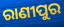
ରାଣୀପୁର